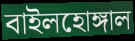
বাইলহোঙ্গাল